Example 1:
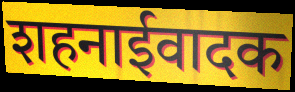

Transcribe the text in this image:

शहनाईवादक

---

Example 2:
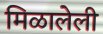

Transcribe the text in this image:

मिळालेली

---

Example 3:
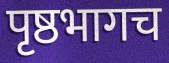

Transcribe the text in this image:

पृष्ठभागच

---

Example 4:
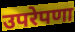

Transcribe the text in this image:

उपरेपणा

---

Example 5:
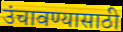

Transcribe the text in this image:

उंचावण्यासाठी